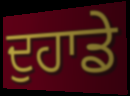
ਦੁਹਾਡੇ